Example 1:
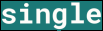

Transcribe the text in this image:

single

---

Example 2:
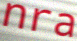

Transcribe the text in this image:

nra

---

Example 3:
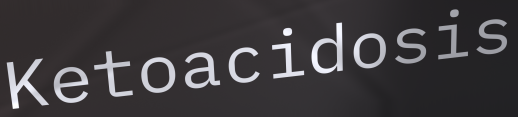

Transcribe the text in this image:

Ketoacidosis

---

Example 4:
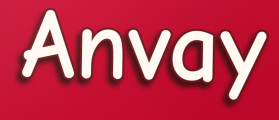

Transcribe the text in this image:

Anvay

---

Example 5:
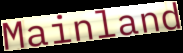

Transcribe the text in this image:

Mainland